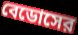
বেডোসের